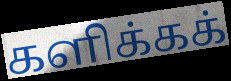
களிக்கக்